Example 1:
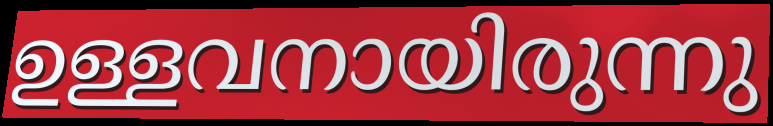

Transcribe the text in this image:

ഉള്ളവനായിരുന്നു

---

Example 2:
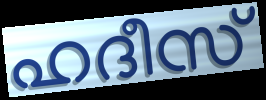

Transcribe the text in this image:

ഹദീസ്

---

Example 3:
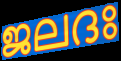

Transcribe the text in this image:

ജലദഃ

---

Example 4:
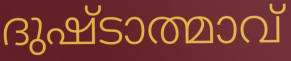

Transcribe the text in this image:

ദുഷ്ടാത്മാവ്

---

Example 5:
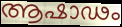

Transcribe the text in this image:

ആഷാഢം